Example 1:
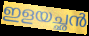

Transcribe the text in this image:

ഇളയച്ഛൻ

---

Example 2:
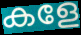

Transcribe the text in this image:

കളേ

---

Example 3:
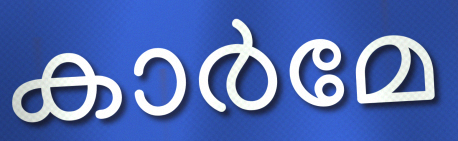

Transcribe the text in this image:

കാർമേ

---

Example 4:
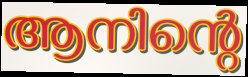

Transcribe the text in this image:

ആനിന്റെ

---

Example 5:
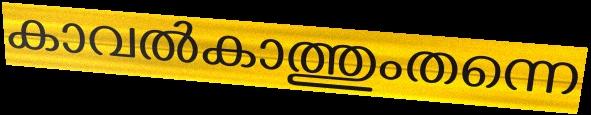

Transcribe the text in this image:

കാവൽകാത്തുംതന്നെ